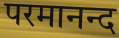
परमानन्द